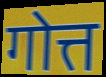
गोत्त